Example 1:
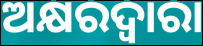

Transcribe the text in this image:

ଅକ୍ଷରଦ୍ଵାରା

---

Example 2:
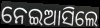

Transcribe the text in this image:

ନେଇଆସିଲେ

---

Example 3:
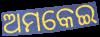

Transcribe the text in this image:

ଅମକେଇ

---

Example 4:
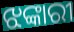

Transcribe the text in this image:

ଝଙ୍କାରୀ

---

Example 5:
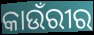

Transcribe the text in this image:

କାଉଁରୀର